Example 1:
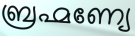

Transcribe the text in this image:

ബ്രഹ്മണ്യേ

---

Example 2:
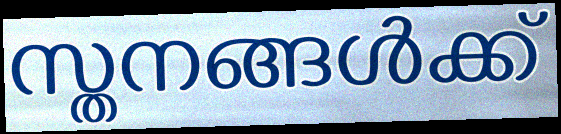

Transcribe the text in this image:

സ്തനങ്ങൾക്ക്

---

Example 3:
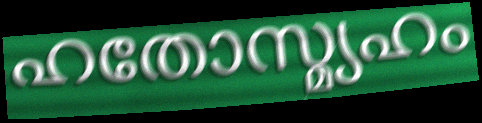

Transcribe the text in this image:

ഹതോസ്മ്യഹം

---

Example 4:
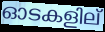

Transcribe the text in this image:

ഓടകളില്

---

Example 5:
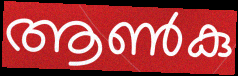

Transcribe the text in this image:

ആൺകു